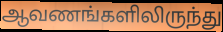
ஆவணங்களிலிருந்து